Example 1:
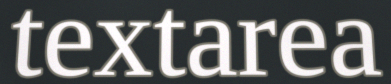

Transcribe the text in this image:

textarea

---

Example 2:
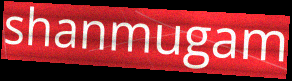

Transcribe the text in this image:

shanmugam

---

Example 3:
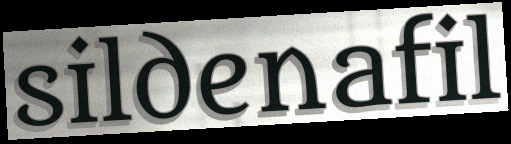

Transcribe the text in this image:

sildenafil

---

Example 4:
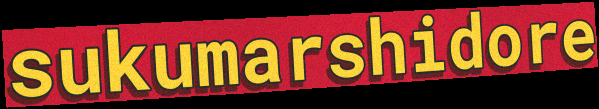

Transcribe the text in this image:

sukumarshidore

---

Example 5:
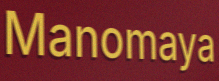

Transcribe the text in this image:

Manomaya